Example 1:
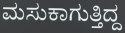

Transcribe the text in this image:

ಮಸುಕಾಗುತ್ತಿದ್ದ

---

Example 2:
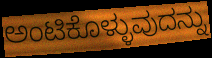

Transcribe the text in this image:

ಅಂಟಿಕೊಳ್ಳುವುದನ್ನು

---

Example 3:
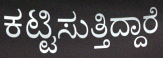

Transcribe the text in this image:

ಕಟ್ಟಿಸುತ್ತಿದ್ದಾರೆ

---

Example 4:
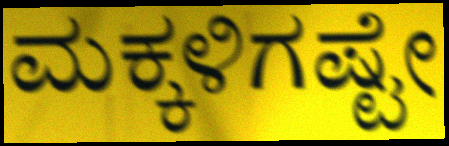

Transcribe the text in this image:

ಮಕ್ಕಳಿಗಷ್ಟೇ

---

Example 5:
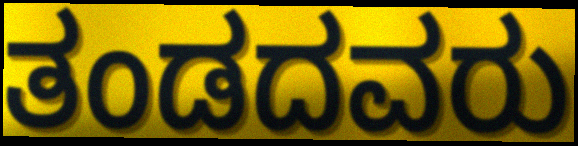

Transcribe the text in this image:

ತಂಡದವರು